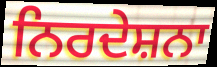
ਨਿਰਦੇਸ਼ਨਾ